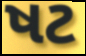
ષટ